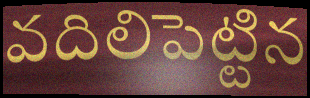
వదిలిపెట్టిన